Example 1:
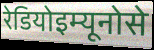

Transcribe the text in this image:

रेडियोइम्यूनोसे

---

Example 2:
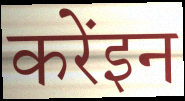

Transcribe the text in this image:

करेंइन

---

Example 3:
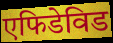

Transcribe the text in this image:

एफिडेविड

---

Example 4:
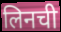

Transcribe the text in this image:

लिनची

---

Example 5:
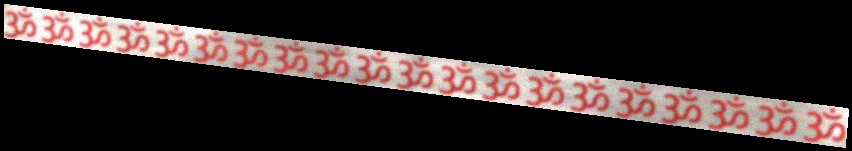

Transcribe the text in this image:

ॐॐॐॐॐॐॐॐॐॐॐॐॐॐॐॐॐॐॐॐ